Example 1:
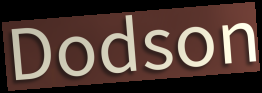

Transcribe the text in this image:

Dodson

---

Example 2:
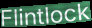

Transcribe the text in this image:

Flintlock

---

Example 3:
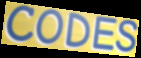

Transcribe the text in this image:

CODES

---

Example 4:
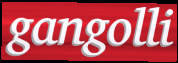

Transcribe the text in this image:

gangolli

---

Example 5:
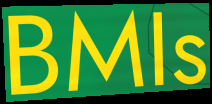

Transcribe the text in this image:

BMIs